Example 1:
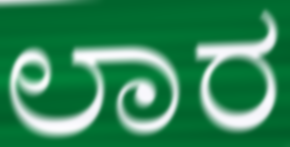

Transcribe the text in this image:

ಲಾರ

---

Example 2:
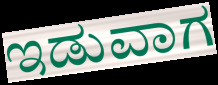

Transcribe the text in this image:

ಇಡುವಾಗ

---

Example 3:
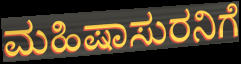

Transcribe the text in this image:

ಮಹಿಷಾಸುರನಿಗೆ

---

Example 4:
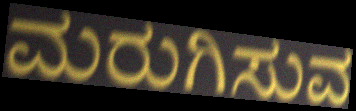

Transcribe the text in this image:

ಮರುಗಿಸುವ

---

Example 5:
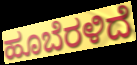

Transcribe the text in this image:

ಹೂಬೆರಳಿದೆ